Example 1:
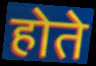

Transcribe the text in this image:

होते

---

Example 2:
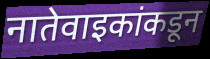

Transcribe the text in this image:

नातेवाइकांकडून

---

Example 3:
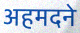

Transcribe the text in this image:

अहमदने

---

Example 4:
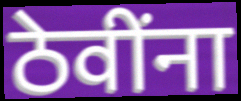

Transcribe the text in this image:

ठेवींना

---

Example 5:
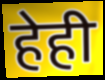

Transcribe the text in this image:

हेही